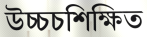
উচ্চচশিক্ষিত